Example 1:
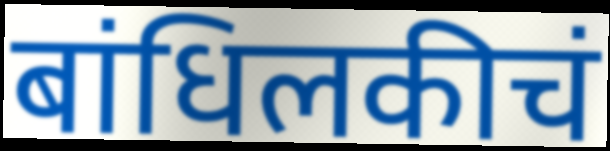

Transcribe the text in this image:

बांधिलकीचं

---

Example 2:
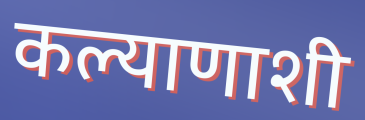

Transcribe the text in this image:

कल्याणाशी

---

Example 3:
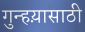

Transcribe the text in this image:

गुन्हय़ासाठी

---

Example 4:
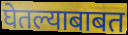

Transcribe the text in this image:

घेतल्याबाबत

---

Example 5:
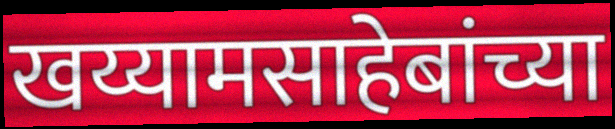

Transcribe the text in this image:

खय्यामसाहेबांच्या